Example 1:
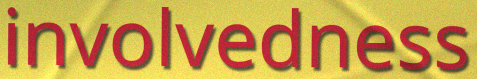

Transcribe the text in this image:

involvedness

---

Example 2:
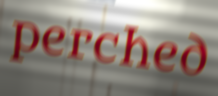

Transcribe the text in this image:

perched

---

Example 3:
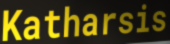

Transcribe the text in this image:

Katharsis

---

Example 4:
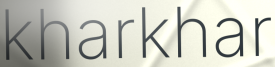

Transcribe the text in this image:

kharkhar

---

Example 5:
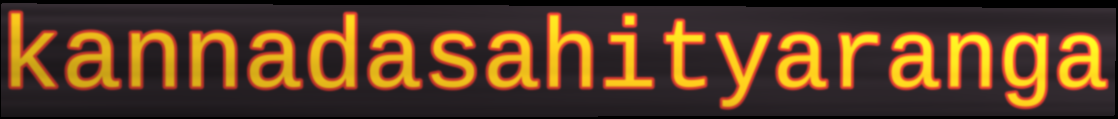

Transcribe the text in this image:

kannadasahityaranga